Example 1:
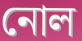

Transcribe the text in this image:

নোল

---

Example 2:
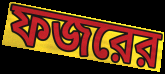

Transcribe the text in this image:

ফজরের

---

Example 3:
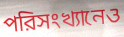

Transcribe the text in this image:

পরিসংখ্যানেও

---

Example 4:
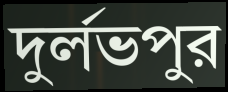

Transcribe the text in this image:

দুর্লভপুর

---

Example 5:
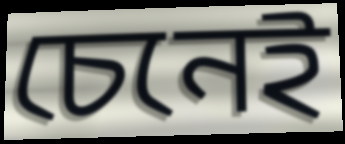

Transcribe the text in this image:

চেনেই